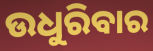
ଉଧୁରିବାର